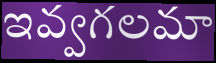
ఇవ్వగలమా